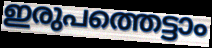
ഇരുപത്തെട്ടാം